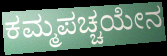
ಕಮ್ಮಪಚ್ಚಯೇನ